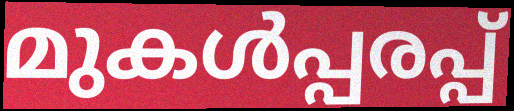
മുകൾപ്പരപ്പ്